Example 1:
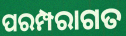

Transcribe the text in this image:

ପରମ୍ପରାଗତ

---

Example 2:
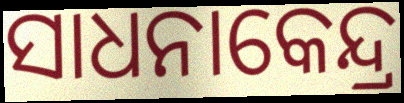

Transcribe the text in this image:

ସାଧନାକେନ୍ଦ୍ର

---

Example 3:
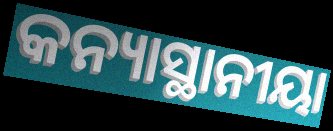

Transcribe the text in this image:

କନ୍ୟାସ୍ଥାନୀୟା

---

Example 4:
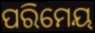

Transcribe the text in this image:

ପରିମେୟ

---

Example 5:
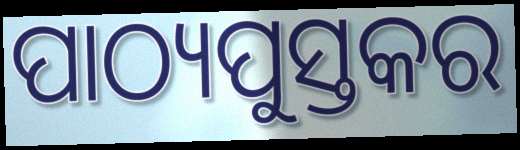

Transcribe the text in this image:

ପାଠ୍ୟପୁସ୍ତକର